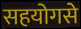
सहयोगसे